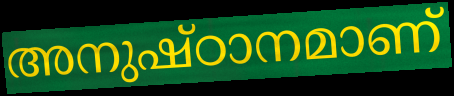
അനുഷ്ഠാനമാണ്